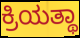
ಕ್ರಿಯತ್ಥಾ